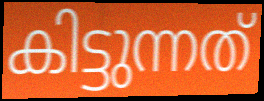
കിട്ടുന്നത്